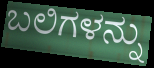
ಬಲಿಗಳನ್ನು